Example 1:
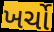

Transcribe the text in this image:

ખર્ચો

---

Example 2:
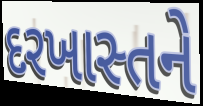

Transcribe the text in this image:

દરખાસ્તને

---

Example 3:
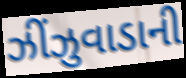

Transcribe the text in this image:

ઝીંઝુવાડાની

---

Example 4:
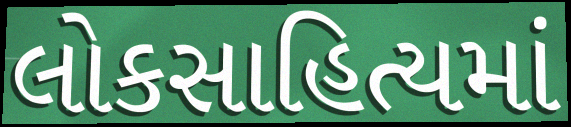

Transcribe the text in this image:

લોકસાહિત્યમાં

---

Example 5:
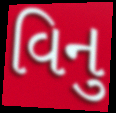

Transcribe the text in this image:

વિનુ